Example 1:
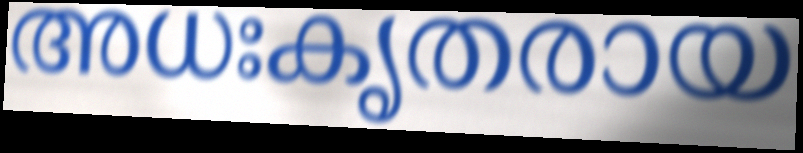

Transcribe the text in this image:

അധഃകൃതരായ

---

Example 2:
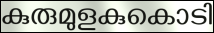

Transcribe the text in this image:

കുരുമുളകുകൊടി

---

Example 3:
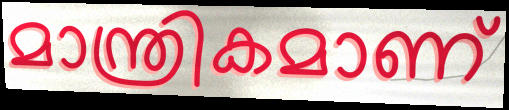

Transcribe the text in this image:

മാന്ത്രികമാണ്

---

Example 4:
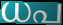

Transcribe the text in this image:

ധപ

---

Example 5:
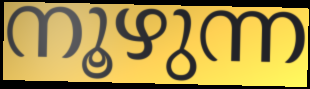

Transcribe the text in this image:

നൂഴുന്ന